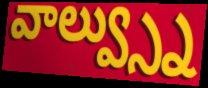
వాల్వ్స్ను